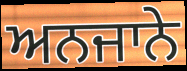
ਅਨਜਾਨੇ